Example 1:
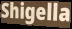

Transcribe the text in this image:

Shigella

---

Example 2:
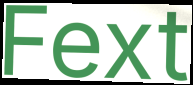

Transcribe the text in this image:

Fext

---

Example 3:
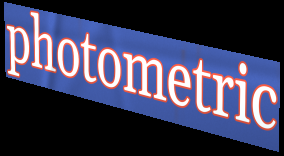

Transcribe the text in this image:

photometric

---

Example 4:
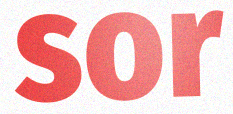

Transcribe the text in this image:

sor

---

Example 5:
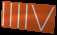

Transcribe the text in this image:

IIIIV